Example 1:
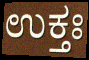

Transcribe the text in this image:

ಉಕ್ತಃ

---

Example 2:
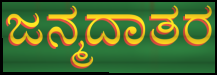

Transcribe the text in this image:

ಜನ್ಮದಾತರ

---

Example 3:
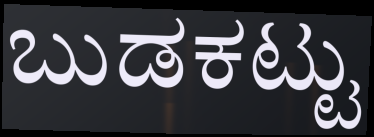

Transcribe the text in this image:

ಬುಡಕಟ್ಟು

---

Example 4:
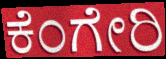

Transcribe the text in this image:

ಕೆಂಗೇರಿ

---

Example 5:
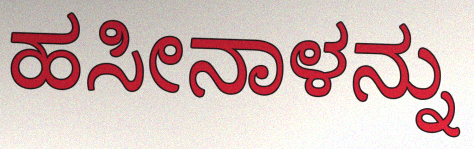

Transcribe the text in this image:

ಹಸೀನಾಳನ್ನು